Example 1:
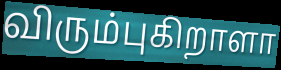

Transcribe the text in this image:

விரும்புகிறாளா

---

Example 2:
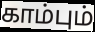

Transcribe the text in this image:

காம்பும்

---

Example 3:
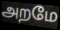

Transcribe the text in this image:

அறமே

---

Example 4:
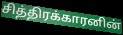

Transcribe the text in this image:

சித்திரக்காரனின்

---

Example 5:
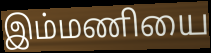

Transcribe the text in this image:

இம்மணியை